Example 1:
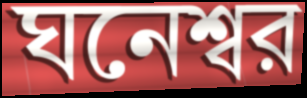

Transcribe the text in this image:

ঘনেশ্বর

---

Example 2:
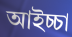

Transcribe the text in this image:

আইচ্চা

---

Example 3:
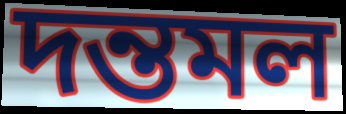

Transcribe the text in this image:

দন্তমল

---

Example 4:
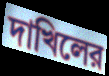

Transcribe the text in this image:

দাখিলের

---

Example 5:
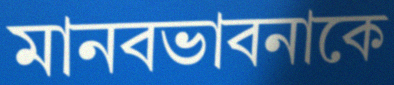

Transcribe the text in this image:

মানবভাবনাকে